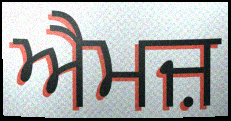
ਐਮਜ਼